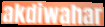
akdiwahar